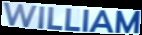
WILLIAM